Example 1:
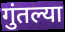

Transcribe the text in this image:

गुंतल्या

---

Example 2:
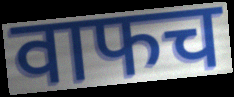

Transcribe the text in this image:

वाफच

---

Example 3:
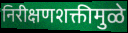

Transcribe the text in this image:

निरीक्षणशक्तीमुळे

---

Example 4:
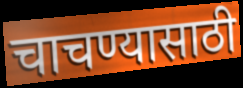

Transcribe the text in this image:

चाचण्यासाठी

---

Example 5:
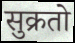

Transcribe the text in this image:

सुक्रतो